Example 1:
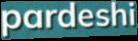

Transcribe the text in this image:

pardeshi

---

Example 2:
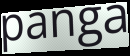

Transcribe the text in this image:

panga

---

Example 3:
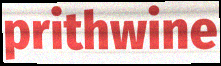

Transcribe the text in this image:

prithwine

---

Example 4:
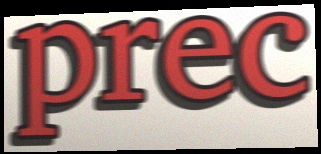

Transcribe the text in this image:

prec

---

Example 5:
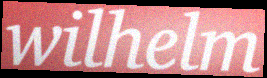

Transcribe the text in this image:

wilhelm